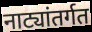
नाट्यांतर्गत